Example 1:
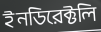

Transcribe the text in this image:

ইনডিরেক্টলি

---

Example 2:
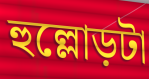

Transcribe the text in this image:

হুল্লোড়টা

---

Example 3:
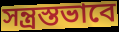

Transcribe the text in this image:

সন্ত্রস্তভাবে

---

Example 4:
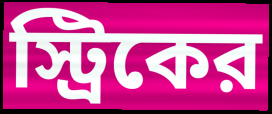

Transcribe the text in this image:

স্ট্রিকের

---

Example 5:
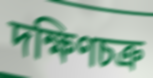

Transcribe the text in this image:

দক্ষিণচক্র